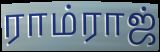
ராம்ராஜ்